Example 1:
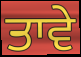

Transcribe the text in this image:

ਤਾਵੇ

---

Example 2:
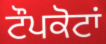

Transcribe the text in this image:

ਟੌਪਕੋਟਾਂ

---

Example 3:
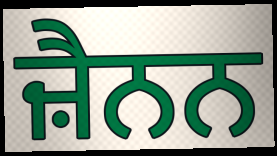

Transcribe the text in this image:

ਜ਼ੈਨਨ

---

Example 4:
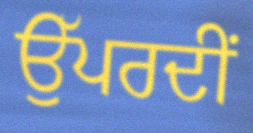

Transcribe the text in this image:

ਉੱਪਰਦੀਂ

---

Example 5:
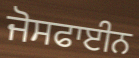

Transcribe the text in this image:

ਜੋਸਫਾਈਨ